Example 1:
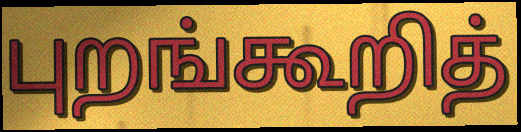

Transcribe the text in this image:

புறங்கூறித்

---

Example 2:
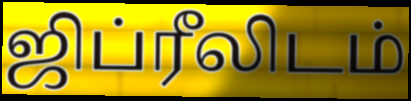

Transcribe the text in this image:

ஜிப்ரீலிடம்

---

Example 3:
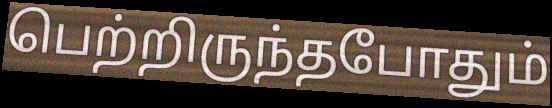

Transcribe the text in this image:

பெற்றிருந்தபோதும்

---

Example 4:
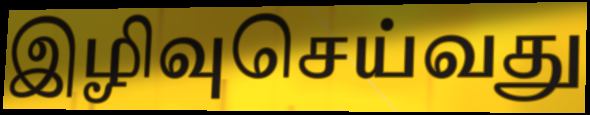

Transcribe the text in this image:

இழிவுசெய்வது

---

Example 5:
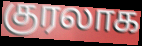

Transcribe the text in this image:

குரலாக